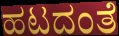
ಹಟದಂತೆ